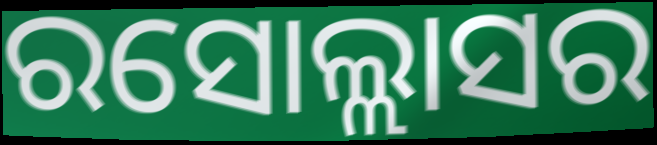
ରସୋଲ୍ଲାସର